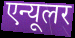
एन्यूलर